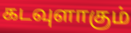
கடவுளாகும்